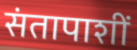
संतापाशीं